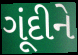
ગૂંદીને